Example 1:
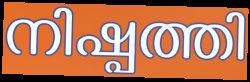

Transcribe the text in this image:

നിഷ്പത്തി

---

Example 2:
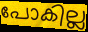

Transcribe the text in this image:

പോകില്ല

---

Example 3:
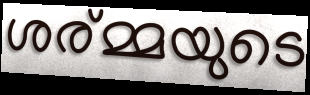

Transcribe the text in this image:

ശര്മ്മയുടെ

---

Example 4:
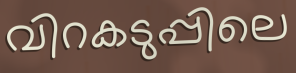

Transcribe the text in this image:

വിറകടുപ്പിലെ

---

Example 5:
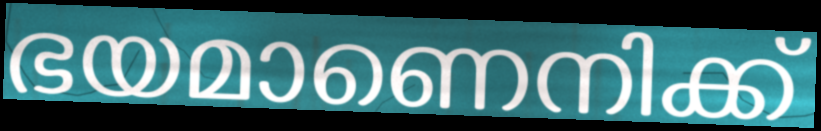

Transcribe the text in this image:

ഭയമാണെനിക്ക്